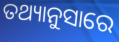
ତଥ୍ୟାନୁସାରେ